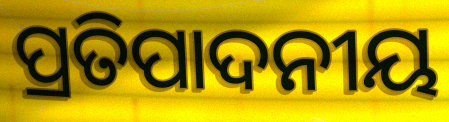
ପ୍ରତିପାଦନୀୟ